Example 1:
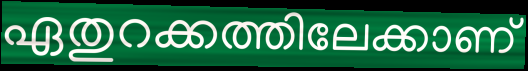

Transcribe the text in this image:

ഏതുറക്കത്തിലേക്കാണ്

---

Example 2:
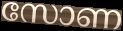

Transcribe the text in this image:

സോണ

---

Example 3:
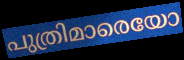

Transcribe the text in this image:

പുത്രിമാരെയോ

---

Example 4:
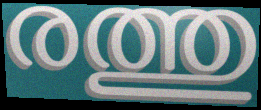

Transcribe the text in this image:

രത്തു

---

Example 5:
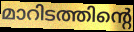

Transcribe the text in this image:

മാറിടത്തിന്റെ